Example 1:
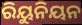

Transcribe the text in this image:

ରିୟୁନିୟନ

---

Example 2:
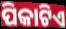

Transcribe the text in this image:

ପିକାଟିଏ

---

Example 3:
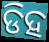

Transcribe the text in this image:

ଡିହ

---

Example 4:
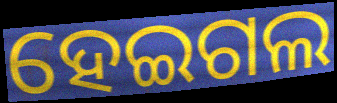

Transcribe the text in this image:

ହେଇଗଲ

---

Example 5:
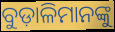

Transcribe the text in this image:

ବୁଡ଼ାଳିମାନଙ୍କୁ